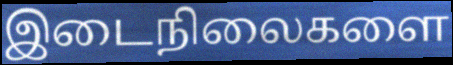
இடைநிலைகளை